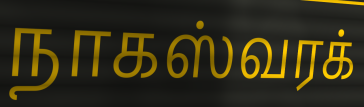
நாகஸ்வரக்